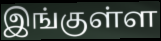
இங்குள்ள